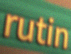
rutin